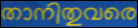
താനിതുവരെ